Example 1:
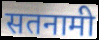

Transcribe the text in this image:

सतनामी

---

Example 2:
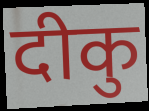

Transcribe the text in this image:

दीकु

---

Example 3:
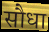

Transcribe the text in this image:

सौधा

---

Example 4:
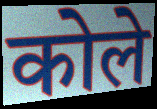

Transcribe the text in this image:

कोले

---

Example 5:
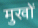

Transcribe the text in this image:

मुखों